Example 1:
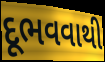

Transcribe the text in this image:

દૂભવવાથી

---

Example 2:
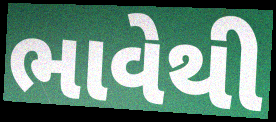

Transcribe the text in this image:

ભાવેથી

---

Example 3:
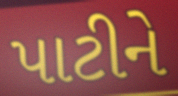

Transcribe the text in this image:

પાટીને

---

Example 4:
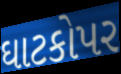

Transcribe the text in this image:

ઘાટકોપર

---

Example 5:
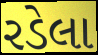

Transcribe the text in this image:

રડેલા